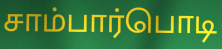
சாம்பார்பொடி